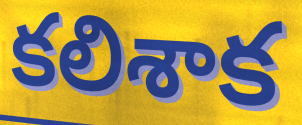
కలిశాక